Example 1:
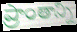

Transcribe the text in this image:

ప్రాంతాన్ని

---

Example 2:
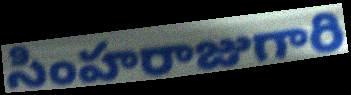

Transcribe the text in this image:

సింహరాజుగారి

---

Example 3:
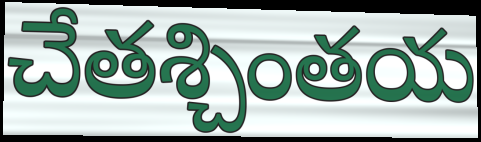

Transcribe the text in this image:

చేతశ్చింతయ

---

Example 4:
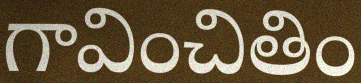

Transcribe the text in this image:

గావించితిం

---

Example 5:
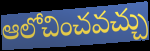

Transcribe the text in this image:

ఆలోచించవచ్చు